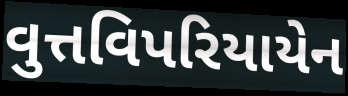
વુત્તવિપરિયાયેન